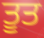
ਤੂਤ